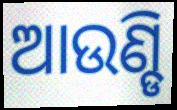
ଆଉଣ୍ଡି